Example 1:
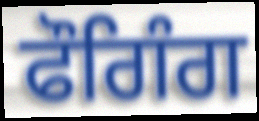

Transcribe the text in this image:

ਫੌਗਿੰਗ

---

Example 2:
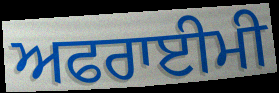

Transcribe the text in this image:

ਅਫਰਾਈਮੀ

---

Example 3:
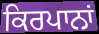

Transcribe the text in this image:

ਕਿਰਪਾਨਾਂ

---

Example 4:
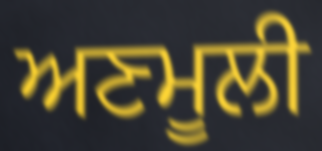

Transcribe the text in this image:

ਅਣਮੂਲੀ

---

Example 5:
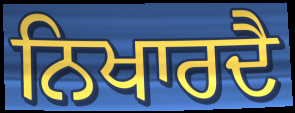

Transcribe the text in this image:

ਨਿਖਾਰਦੈ